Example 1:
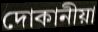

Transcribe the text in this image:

দোকানীয়া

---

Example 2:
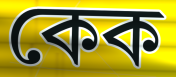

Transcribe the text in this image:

কেক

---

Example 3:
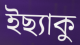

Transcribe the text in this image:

ইছ্যাকু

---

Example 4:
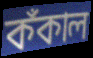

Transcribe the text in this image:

কঁকাল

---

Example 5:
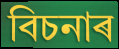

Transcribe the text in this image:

বিচনাৰ